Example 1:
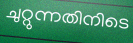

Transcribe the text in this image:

ചുറ്റുന്നതിനിടെ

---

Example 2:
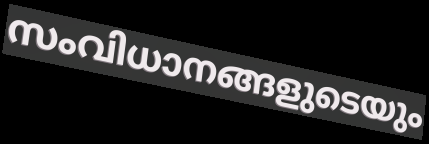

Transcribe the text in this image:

സംവിധാനങ്ങളുടെയും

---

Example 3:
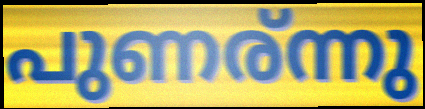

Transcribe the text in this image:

പുണര്ന്നു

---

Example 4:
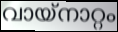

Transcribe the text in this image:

വായ്നാറ്റം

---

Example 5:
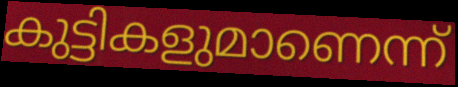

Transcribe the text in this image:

കുട്ടികളുമാണെന്ന്